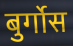
बुर्गोस